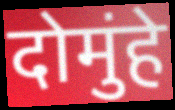
दोमुंहे